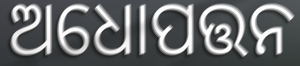
ଅଧୋପତ୍ତନ